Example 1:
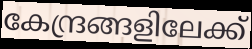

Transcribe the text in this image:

കേന്ദ്രങ്ങളിലേക്ക്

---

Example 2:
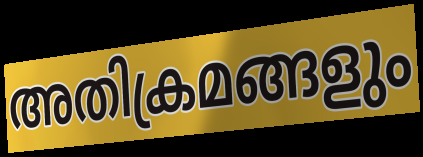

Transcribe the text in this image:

അതിക്രമങ്ങളും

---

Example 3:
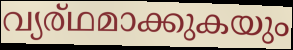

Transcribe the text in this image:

വ്യര്ഥമാക്കുകയും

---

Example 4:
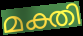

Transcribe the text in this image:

മക്തി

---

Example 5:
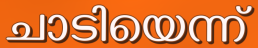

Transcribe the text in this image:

ചാടിയെന്ന്